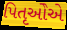
પિતૃઓેએ